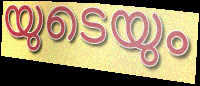
യുടെയും